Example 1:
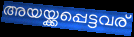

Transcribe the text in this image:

അയയ്ക്കപ്പെട്ടവര്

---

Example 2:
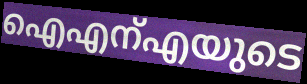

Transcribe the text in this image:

ഐഎന്എയുടെ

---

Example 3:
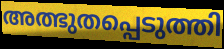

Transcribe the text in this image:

അത്ഭുതപ്പെടുത്തി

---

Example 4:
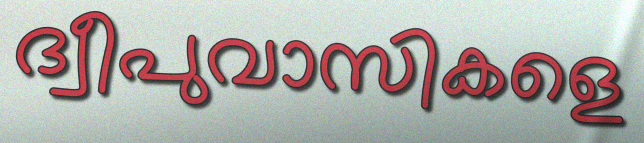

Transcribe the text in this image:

ദ്വീപുവാസികളെ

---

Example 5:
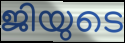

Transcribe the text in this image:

ജിയുടെ